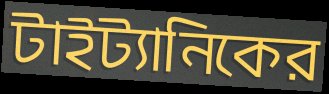
টাইট্যানিকের